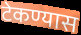
टेकण्यास